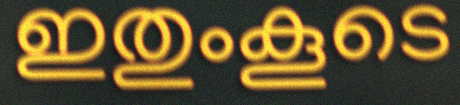
ഇതുംകൂടെ